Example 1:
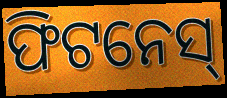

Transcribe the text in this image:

ଫିଟନେସ୍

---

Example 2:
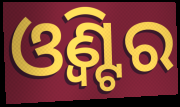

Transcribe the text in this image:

ଓ୍ଵିଣ୍ଟର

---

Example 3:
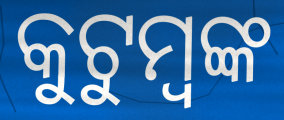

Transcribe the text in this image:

କୁଟୁମ୍ବଙ୍କ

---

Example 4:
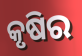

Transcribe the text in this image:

କୃଷିର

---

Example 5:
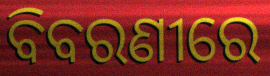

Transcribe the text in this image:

ବିବରଣୀରେ